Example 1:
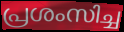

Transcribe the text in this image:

പ്രശംസിച്ച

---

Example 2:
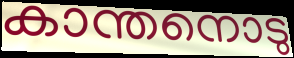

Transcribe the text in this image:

കാന്തനൊടു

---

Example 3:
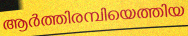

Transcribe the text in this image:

ആർത്തിരമ്പിയെത്തിയ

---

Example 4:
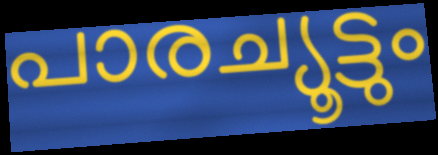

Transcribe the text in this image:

പാരച്യൂട്ടും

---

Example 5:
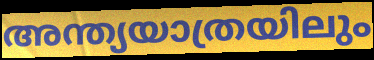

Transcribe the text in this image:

അന്ത്യയാത്രയിലും